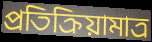
প্রতিক্রিয়ামাত্র